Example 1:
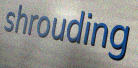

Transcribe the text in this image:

shrouding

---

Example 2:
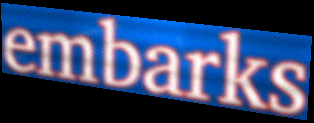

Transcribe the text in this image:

embarks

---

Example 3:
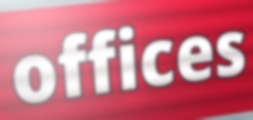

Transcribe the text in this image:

offices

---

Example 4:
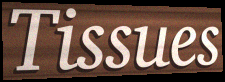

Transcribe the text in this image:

Tissues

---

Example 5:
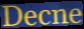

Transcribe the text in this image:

Decne